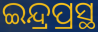
ଇନ୍ଦ୍ରପ୍ରସ୍ଥ